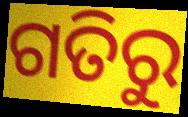
ଗତିରୁ